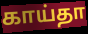
காய்தா